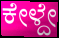
ಕೇಳ್ದೇ